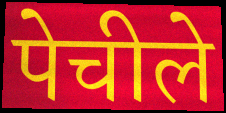
पेचीले